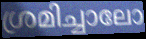
ശ്രമിച്ചാലോ